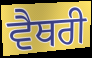
ਵੈਥਰੀ